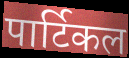
पार्टिकल